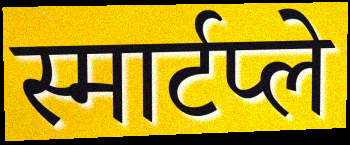
स्मार्टप्ले